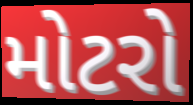
મોટરો